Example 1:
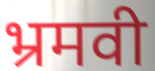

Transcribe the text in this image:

भ्रमवी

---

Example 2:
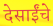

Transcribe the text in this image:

देसाईंचे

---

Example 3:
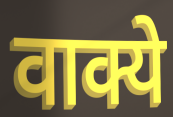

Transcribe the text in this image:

वाक्ये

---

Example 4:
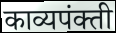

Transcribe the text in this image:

काव्यपंक्ती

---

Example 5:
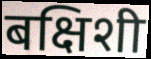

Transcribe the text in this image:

बक्षिशी